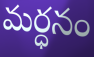
మర్ధనం